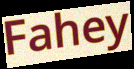
Fahey